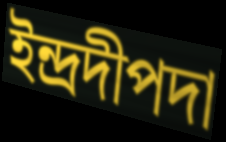
ইন্দ্রদীপদা